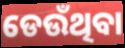
ଡେଉଁଥିବା